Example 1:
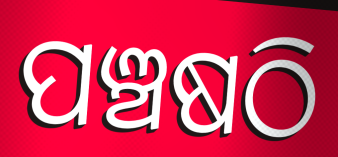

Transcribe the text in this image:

ପଞ୍ଚଷଠି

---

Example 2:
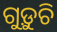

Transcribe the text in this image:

ଗୁଡ଼ୁଚି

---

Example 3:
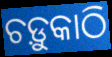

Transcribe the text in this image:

ଚଡ଼ୁକାଠି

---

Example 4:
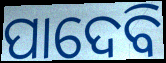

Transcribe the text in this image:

ପାଦେବି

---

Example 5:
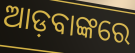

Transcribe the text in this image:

ଆଡ଼ବାଙ୍କରେ